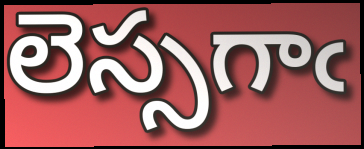
లెస్సగాఁ